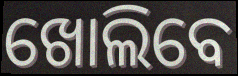
ଖୋଲିବେ